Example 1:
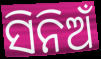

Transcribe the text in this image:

ସିନିଅଁ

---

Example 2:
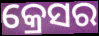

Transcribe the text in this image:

କ୍ରେସର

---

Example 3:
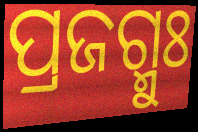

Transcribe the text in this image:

ପ୍ରଜଗ୍ମୁଃ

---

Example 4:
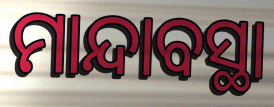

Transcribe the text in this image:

ମାନ୍ଦାବସ୍ଥା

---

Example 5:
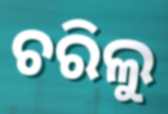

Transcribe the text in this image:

ଚରିଲୁ